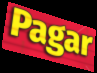
Pagar